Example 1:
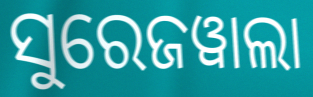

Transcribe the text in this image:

ସୁରେଜୱାଲା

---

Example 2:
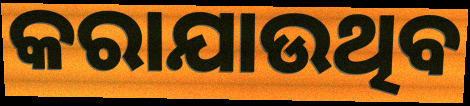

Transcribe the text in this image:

କରାଯାଉଥିବ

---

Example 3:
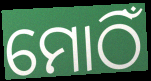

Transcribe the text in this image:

ମୋଠିଁ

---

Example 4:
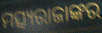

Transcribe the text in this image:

ମତ୍ସ୍ୟରାଜାଙ୍କର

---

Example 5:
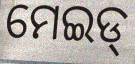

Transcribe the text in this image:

ମେଇଡ୍